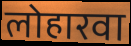
लोहारवा